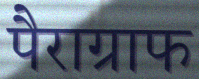
पैराग्राफ